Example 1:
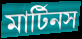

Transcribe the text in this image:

মার্টিনস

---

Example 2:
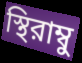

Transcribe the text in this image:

স্থিরাম্বু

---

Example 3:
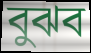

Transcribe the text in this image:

বুঝব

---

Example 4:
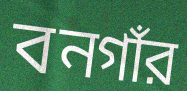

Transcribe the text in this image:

বনগাঁর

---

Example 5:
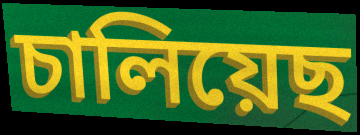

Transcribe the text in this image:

চালিয়েছ